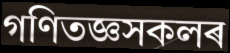
গণিতজ্ঞসকলৰ